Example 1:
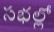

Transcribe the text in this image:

సభల్లో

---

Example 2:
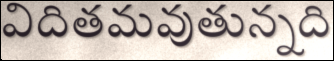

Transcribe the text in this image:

విదితమవుతున్నది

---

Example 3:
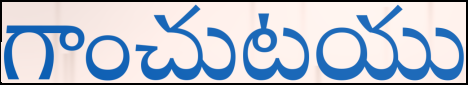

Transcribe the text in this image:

గాంచుటయు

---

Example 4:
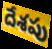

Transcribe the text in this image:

దేశపు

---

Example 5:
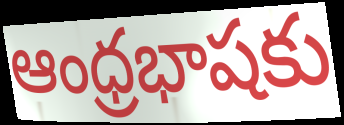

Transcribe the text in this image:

ఆంధ్రభాషకు